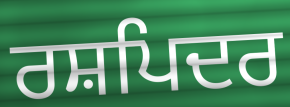
ਰਸ਼ਪਿਦਰ